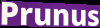
Prunus